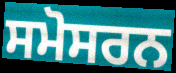
ਸਮੋਸਰਨ